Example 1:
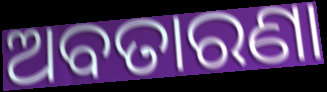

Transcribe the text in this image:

ଅବତାରଣା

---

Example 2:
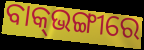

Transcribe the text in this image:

ବାକ୍‍ଭଙ୍ଗୀରେ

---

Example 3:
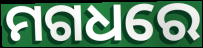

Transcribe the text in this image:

ମଗଧରେ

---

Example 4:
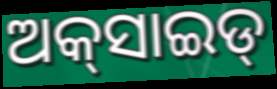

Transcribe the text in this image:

ଅକ୍‌ସାଇଡ୍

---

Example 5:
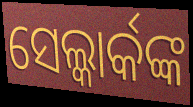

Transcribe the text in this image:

ସେଲ୍କାର୍କଙ୍କ